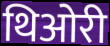
थिओरी